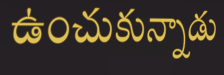
ఉంచుకున్నాడు